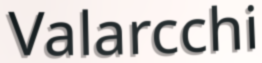
Valarcchi